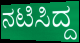
ನಟಿಸಿದ್ದ